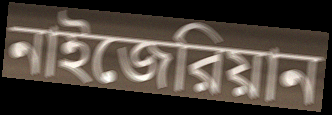
নাইজেরিয়ান